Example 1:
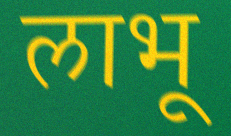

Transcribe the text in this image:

लाभू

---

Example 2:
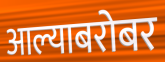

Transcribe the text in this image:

आल्याबरोबर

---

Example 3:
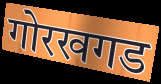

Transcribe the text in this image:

गोरखगड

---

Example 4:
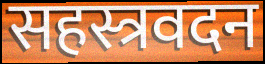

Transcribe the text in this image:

सहस्त्रवदन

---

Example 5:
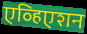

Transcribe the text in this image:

एव्हिएशन